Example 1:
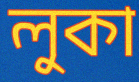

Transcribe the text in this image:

লুকা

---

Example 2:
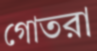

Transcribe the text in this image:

গোতরা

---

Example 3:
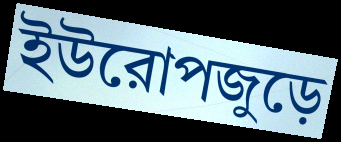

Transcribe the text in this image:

ইউরোপজুড়ে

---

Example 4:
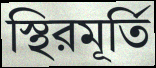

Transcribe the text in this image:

স্থিরমূর্তি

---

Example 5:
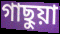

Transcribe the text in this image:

গাছুয়া